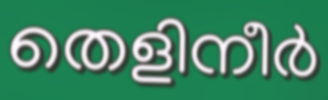
തെളിനീർ